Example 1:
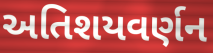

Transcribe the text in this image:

અતિશયવર્ણન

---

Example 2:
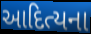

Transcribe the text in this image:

આદિત્યના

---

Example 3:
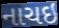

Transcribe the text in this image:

નાચઇ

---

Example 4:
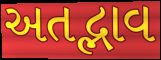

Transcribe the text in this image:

અતદ્ભાવ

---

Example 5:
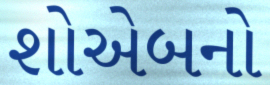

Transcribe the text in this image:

શોએબનો